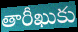
తారీఖుకు